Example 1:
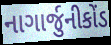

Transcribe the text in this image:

નાગાર્જુનીકોંડ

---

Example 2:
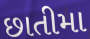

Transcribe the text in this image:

છાતીમા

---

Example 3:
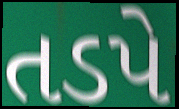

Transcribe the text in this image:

તડપે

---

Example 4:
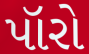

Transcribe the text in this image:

પૉરો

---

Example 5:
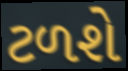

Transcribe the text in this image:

ટળશે